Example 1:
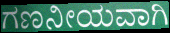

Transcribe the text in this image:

ಗಣನೀಯವಾಗಿ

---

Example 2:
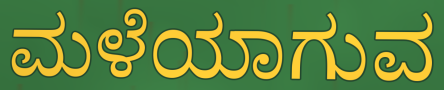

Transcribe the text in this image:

ಮಳೆಯಾಗುವ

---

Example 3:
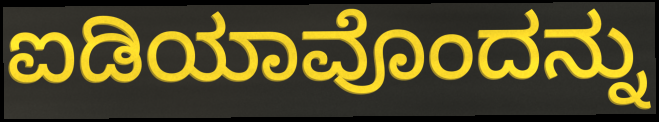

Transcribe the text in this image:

ಐಡಿಯಾವೊಂದನ್ನು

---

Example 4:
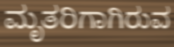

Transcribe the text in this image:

ಮೃತರಿಗಾಗಿರುವ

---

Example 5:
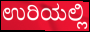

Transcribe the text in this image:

ಉರಿಯಲ್ಲಿ